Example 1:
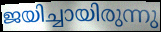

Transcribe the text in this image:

ജയിച്ചായിരുന്നു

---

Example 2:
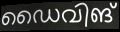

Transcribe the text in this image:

ഡൈവിങ്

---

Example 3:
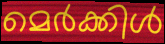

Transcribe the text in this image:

മെർക്കിൾ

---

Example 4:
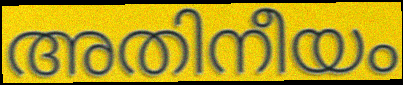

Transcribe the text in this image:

അതിനീയം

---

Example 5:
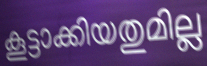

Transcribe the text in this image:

കൂട്ടാക്കിയതുമില്ല